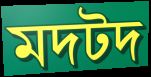
মদটদ